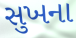
સુખના